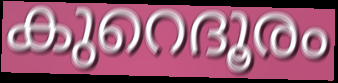
കുറെദൂരം